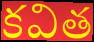
కవిత